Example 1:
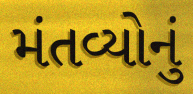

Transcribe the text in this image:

મંતવ્યોનું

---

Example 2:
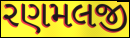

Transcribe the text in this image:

રણમલજી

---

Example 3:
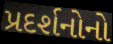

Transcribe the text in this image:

પ્રદર્શનોનો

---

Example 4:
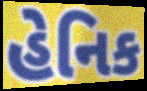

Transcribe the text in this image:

હેનિક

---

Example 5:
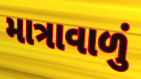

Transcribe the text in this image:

માત્રાવાળું